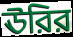
ঊরির